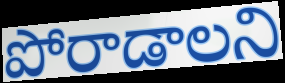
పోరాడాలని